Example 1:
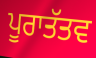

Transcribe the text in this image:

ਪੂਰਾਤੱਤਵ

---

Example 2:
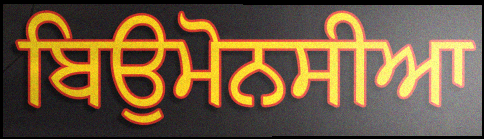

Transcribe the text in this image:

ਬਿਉਮੋਨਸੀਆ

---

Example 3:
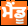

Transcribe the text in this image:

ਮੈਂਡੂ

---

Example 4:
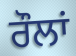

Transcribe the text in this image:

ਰੌਲਾਂ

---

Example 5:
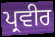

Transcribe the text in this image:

ਪ੍ਰਵੀਰ